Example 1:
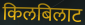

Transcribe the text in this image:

किलबिलाट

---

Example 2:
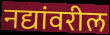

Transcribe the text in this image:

नद्यांवरील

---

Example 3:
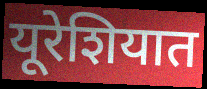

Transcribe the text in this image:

यूरेशियात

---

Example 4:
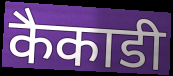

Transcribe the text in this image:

कैकाडी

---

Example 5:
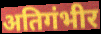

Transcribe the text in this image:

अतिगंभीर